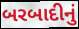
બરબાદીનું